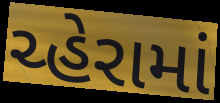
ચ્હેરામાં